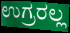
ಉಗ್ರರಲ್ಲ